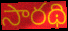
సారథి